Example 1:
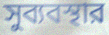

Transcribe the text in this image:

সুব্যবস্থার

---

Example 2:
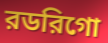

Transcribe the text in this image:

রডরিগো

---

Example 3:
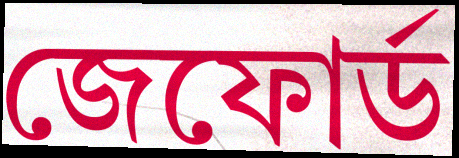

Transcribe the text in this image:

জেফোর্ড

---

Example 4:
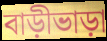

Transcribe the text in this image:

বাড়ীভাড়া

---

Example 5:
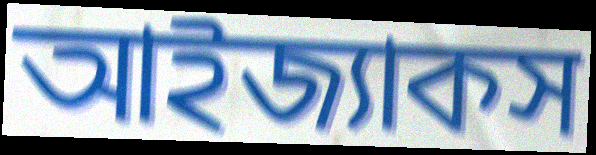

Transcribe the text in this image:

আইজ্যাকস